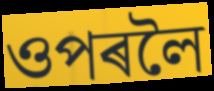
ওপৰলৈ